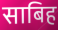
साबिह